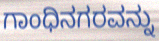
ಗಾಂಧಿನಗರವನ್ನು